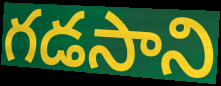
గడసాని